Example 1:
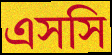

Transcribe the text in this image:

এসসি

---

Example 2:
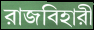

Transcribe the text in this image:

রাজবিহারী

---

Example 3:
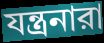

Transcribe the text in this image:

যন্ত্রনারা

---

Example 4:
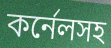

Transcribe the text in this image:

কর্নেলসহ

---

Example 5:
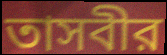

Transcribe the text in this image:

তাসবীর